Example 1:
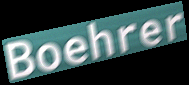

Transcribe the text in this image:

Boehrer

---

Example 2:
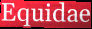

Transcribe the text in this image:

Equidae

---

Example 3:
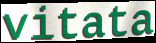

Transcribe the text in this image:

vitata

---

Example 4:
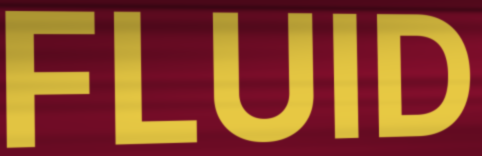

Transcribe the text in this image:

FLUID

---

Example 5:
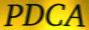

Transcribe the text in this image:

PDCA